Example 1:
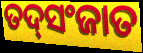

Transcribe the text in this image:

ତଦ୍‌ସଂଜାତ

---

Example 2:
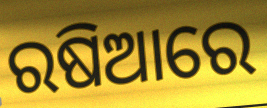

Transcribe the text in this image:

ରଷିଆରେ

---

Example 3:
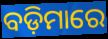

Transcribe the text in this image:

ବଡ଼ିମାରେ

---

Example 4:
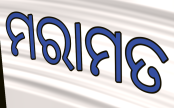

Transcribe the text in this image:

ମରାମତ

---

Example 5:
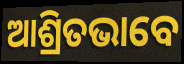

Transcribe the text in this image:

ଆଶ୍ରିତଭାବେ